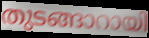
തുടങ്ങാറായി